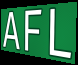
AFL